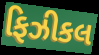
ફિઝીકલ